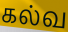
கல்வ